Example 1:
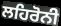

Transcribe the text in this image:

ਲਹਿਰੋਨੀ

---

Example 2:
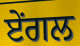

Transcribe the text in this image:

ਏਂਗਲ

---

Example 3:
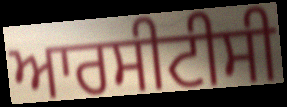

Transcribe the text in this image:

ਆਰਸੀਟੀਸੀ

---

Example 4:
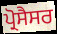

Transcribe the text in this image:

ਪ੍ਰੋਸੈਸਰ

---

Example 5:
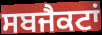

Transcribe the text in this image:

ਸਬਜੈਕਟਾਂ